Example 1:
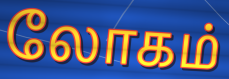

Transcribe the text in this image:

லோகம்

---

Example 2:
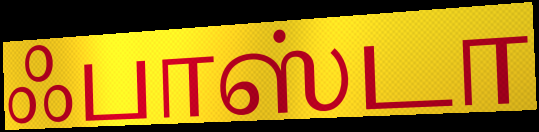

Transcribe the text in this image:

ஃபாஸ்டா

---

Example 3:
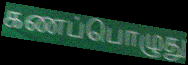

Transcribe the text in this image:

கணப்பொழுது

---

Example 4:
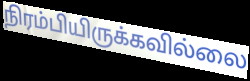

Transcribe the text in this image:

நிரம்பியிருக்கவில்லை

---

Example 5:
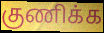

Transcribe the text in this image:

குணிக்க